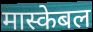
मास्केबल